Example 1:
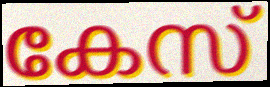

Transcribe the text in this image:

കേസ്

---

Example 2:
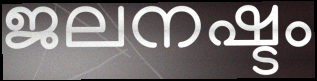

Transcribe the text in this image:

ജലനഷ്ടം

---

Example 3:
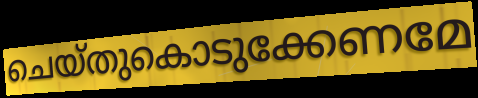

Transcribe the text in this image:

ചെയ്തുകൊടുക്കേണമേ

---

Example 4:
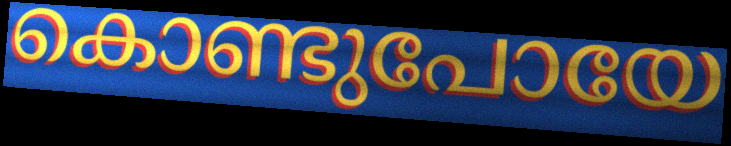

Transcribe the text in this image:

കൊണ്ടുപോയേ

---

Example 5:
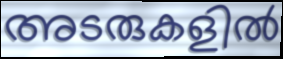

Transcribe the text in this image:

അടരുകളിൽ